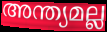
അന്ത്യമല്ല